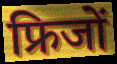
फ्रिजों